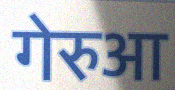
गेरुआ